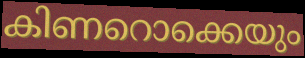
കിണറൊക്കെയും